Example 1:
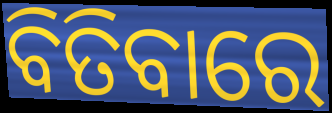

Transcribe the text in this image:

ବିତିବାରେ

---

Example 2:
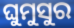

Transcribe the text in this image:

ଘୁମୁସୁର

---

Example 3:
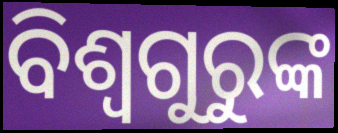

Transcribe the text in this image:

ବିଶ୍ୱଗୁରୁଙ୍କ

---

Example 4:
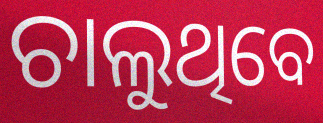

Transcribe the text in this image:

ଚାଲୁଥିବେ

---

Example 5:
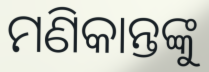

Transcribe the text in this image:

ମଣିକାନ୍ତଙ୍କୁ